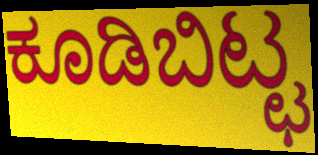
ಕೂಡಿಬಿಟ್ಟ